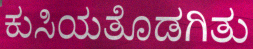
ಕುಸಿಯತೊಡಗಿತು